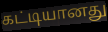
கட்டியானது